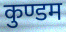
कुण्डम